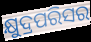
କ୍ଷୁଦ୍ରପରିସର